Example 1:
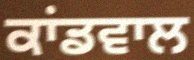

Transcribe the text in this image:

ਕਾਂਡਵਾਲ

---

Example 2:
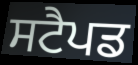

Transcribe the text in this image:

ਸਟੈਪਡ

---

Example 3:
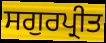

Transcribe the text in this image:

ਸਗੁਰਪ੍ਰੀਤ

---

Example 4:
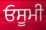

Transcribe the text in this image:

ਓਸੂਮੀ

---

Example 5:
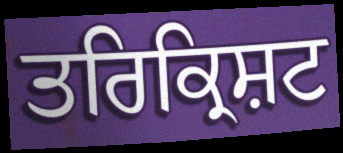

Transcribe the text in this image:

ਤਰਿਕ੍ਰਿਸ਼ਟ